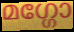
മഗ്ഗോ